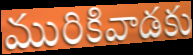
మురికివాడకు